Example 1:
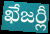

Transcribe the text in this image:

ఖేజర్లీ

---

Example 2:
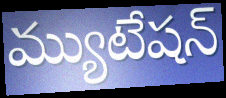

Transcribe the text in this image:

మ్యుటేషన్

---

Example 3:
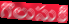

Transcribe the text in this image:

గొలుసుకి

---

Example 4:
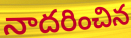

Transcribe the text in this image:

నాదరించిన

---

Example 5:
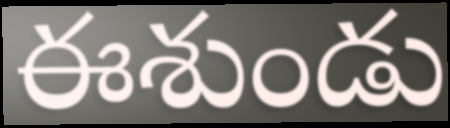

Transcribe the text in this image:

ఈశుండు